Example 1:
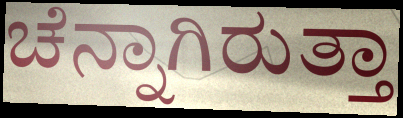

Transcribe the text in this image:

ಚೆನ್ನಾಗಿರುತ್ತಾ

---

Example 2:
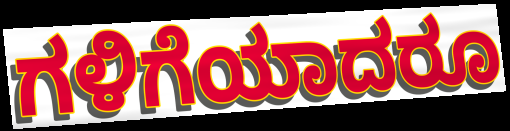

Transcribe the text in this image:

ಗಳಿಗೆಯಾದರೂ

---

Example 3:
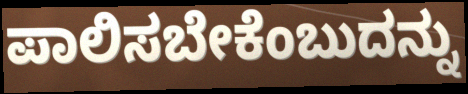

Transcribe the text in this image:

ಪಾಲಿಸಬೇಕೆಂಬುದನ್ನು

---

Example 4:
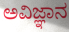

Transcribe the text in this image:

ಅವಿಜ್ಞಾನ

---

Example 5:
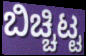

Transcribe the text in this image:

ಬಿಚ್ಚಿಟ್ಟ